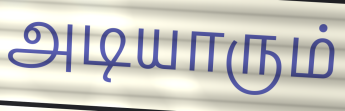
அடியாரும்